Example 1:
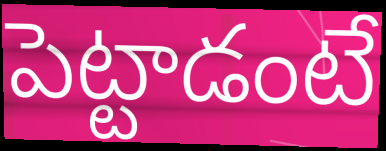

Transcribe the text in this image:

పెట్టాడంటే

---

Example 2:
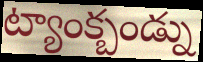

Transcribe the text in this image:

ట్యాంక్బండ్ను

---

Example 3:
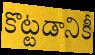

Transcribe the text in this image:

కొట్టడానికీ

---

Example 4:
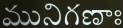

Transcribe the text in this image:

మునిగణాః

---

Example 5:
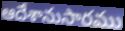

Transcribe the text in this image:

ఆదేశానుసారము